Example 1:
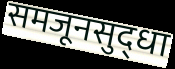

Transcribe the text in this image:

समजूनसुद्धा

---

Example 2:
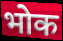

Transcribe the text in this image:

भोक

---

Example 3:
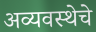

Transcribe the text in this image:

अव्यवस्थेचे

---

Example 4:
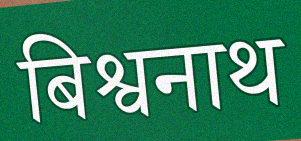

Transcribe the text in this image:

बिश्वनाथ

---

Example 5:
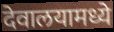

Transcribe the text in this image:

देवालयामध्ये